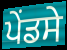
ਪੇਂਡਸੇ